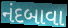
નંદબાવા